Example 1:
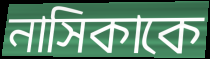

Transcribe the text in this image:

নাসিকাকে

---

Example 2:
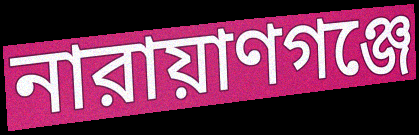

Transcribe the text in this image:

নারায়াণগঞ্জে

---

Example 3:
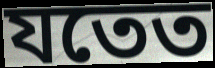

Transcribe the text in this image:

যতেত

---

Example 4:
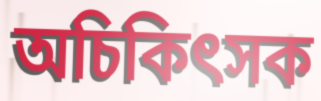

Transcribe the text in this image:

অচিকিৎসক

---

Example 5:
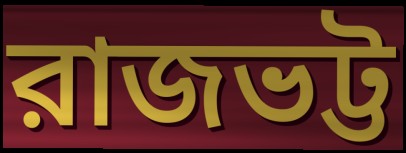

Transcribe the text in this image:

রাজভট্ট